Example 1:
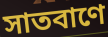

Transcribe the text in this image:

সাতবাণে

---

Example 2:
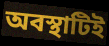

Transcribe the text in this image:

অবস্থাটিই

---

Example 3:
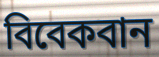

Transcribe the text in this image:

বিবেকবান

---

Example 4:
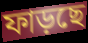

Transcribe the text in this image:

ফাড়ছে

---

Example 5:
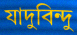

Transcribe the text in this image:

যাদুবিন্দু